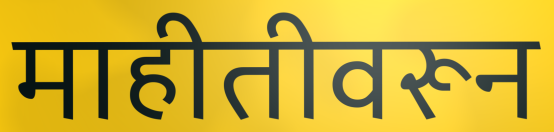
माहीतीवरून